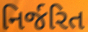
નિર્જરિત